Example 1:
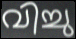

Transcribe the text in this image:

വിച്ചു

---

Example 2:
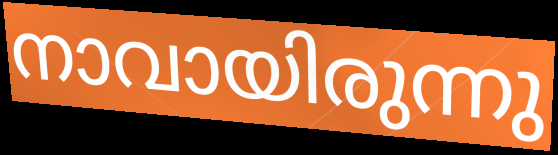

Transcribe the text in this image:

നാവായിരുന്നു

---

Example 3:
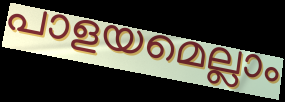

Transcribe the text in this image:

പാളയമെല്ലാം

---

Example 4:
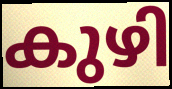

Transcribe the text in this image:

കുഴി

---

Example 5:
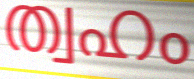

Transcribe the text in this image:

ത്വഹം